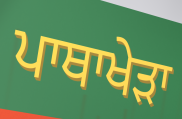
ਪਾਥਾਖੇੜਾ